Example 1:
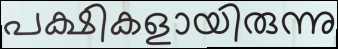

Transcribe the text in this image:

പക്ഷികളായിരുന്നു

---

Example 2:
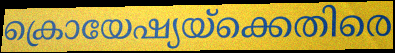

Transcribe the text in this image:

ക്രൊയേഷ്യയ്ക്കെതിരെ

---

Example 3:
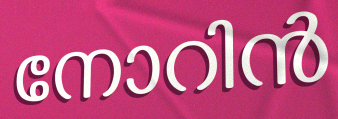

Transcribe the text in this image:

നോറിൻ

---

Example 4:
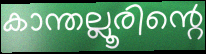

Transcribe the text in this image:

കാന്തല്ലൂരിന്റെ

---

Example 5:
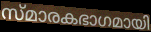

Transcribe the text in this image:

സ്മാരകഭാഗമായി